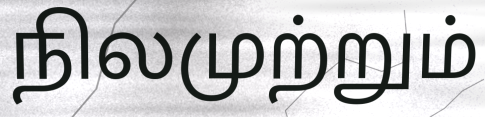
நிலமுற்றும்